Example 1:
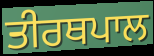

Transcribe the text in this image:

ਤੀਰਥਪਾਲ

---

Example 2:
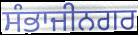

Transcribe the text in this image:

ਸੰਭਾਜੀਨਗਰ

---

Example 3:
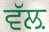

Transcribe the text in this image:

ਵੱਲ਼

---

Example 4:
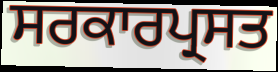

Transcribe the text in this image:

ਸਰਕਾਰਪ੍ਰਸਤ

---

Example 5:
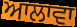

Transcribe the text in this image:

ਆਲਾਵਾ